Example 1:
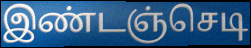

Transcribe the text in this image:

இண்டஞ்செடி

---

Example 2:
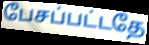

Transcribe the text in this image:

பேசப்பட்டதே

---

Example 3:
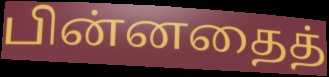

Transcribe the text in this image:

பின்னதைத்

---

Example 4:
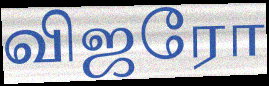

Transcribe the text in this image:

விஜரோ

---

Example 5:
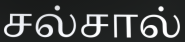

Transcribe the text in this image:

சல்சால்